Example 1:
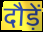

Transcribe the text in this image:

दौड़ें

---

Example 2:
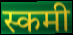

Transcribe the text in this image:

स्कमी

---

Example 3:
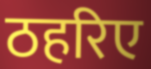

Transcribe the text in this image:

ठहरिए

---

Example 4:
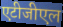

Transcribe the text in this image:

एटीजीएल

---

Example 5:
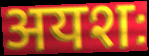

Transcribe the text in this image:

अयशः